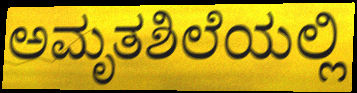
ಅಮೃತಶಿಲೆಯಲ್ಲಿ